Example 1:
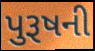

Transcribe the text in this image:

પુરૂષની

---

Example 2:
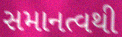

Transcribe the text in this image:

સમાનત્વથી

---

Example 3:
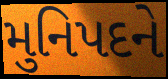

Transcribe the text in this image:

મુનિપદને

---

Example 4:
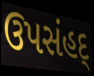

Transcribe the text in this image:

ઉપસંહદ્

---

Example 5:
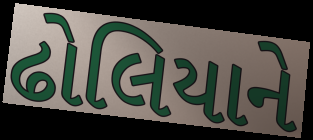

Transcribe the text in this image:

ઢોલિયાને